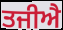
ਤਜੀਐ